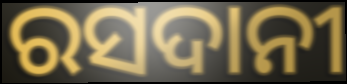
ରସଦାନୀ